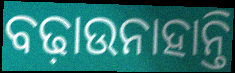
ବଢ଼ାଉନାହାନ୍ତି